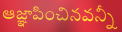
ఆజ్ఞాపించినవన్నీ